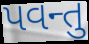
પવન્તુ